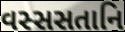
વસ્સસતાનિ